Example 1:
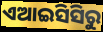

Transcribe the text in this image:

ଏଆଇସିସିରୁ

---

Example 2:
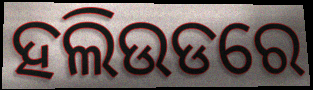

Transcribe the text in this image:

ହଲିଉଡରେ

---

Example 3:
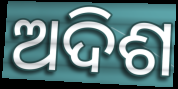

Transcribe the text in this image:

ଅଦିଶ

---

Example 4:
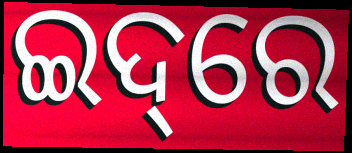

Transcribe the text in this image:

ଇଦ୍‌ରେ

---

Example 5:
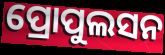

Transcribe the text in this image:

ପ୍ରୋପୁଲସନ